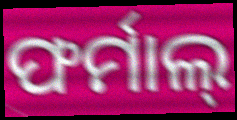
ଫର୍ମାଲ୍